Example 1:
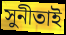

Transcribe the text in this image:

সুনীতাই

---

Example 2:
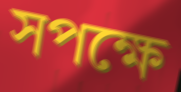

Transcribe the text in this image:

সপক্ষে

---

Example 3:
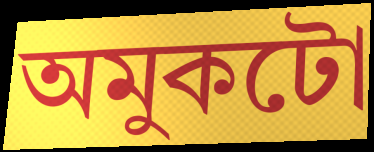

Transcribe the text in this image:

অমুকটো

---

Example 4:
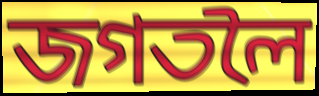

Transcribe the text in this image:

জগতলৈ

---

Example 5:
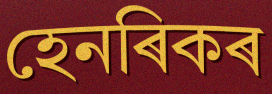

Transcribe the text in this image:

হেনৰিকৰ